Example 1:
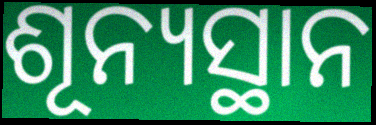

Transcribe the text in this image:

ଶୂନ୍ୟସ୍ଥାନ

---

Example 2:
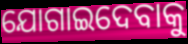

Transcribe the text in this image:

ଯୋଗାଇଦେବାକୁ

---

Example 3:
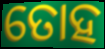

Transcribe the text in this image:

ତୋହ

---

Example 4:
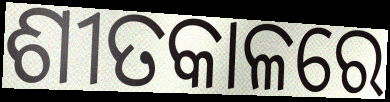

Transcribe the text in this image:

ଶୀତକାଳରେ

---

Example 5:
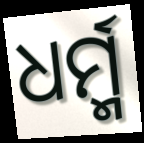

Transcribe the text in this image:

ଧର୍ମ୍ମ